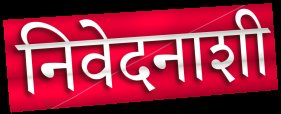
निवेदनाशी